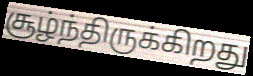
சூழ்ந்திருக்கிறது